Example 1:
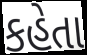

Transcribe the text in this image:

કહેતા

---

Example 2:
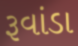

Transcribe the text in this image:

રૂવાંડા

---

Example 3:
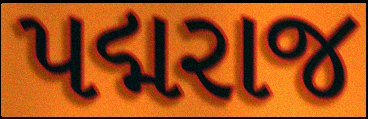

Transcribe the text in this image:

પદ્મરાજ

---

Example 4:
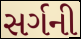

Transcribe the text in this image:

સર્ગની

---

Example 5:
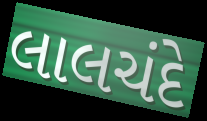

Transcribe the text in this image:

લાલચંદે